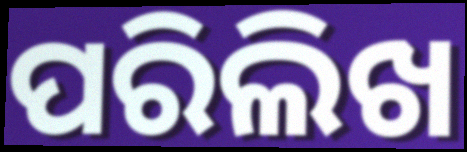
ପରିଲିଖ